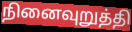
நினைவுறுத்தி